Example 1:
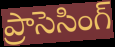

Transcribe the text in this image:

ప్రాసెసింగ్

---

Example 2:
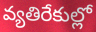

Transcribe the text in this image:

వ్యతిరేకుల్లో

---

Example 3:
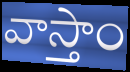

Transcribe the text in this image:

వాస్తాం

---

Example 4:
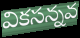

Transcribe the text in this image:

వికసన్నవ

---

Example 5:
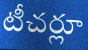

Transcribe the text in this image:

టీచర్లూ